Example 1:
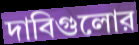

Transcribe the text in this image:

দাবিগুলোর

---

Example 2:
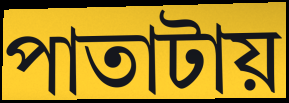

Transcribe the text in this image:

পাতাটায়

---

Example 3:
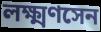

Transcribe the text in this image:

লক্ষ্মণসেন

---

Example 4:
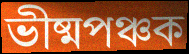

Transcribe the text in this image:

ভীষ্মপঞ্চক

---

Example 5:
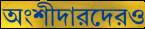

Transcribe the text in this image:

অংশীদারদেরও